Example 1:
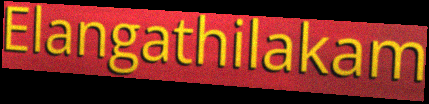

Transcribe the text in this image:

Elangathilakam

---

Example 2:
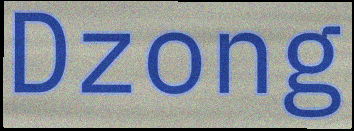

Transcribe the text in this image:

Dzong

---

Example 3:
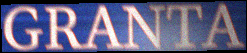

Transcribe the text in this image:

GRANTA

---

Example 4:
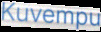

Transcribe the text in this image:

Kuvempu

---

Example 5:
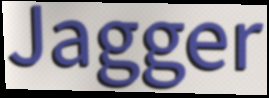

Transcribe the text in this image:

Jagger